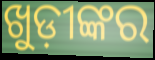
ଖୁଡ଼ୀଙ୍କର